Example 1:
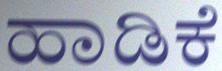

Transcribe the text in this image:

ಹಾಡಿಕೆ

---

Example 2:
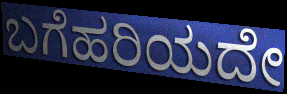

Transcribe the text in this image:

ಬಗೆಹರಿಯದೇ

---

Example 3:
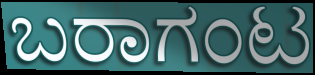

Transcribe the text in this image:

ಬರಾಗಂಟ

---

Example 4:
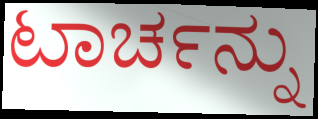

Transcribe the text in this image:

ಟಾರ್ಚನ್ನು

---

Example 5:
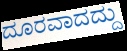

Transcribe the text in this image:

ದೂರವಾದದ್ದು